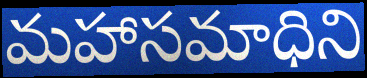
మహాసమాధిని